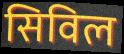
सिविल